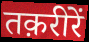
तक़रीरें